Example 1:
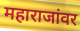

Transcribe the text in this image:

महाराजांवर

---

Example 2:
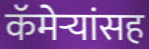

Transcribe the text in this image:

कॅमेऱ्यांसह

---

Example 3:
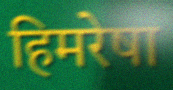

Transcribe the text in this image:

हिमरेषा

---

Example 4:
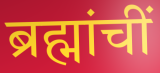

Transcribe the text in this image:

ब्रह्मांचीं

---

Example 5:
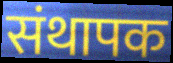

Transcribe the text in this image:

संथापक